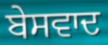
ਬੇਸਵਾਦ